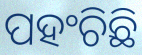
ପହଂଚିଛି